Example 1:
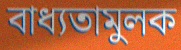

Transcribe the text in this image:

বাধ্যতামুলক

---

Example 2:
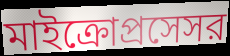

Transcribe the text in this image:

মাইক্রোপ্রসেসর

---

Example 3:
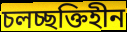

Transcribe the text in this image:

চলচ্ছক্তিহীন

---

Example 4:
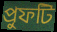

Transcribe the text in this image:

প্রুফটি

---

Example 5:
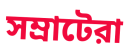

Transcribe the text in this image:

সম্রাটেরা